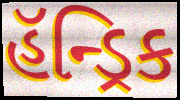
હૅન્ડ્રિક